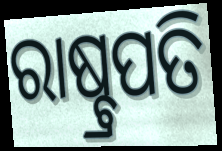
ରାଷ୍ଚ୍ରପତି